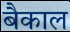
बैकाल